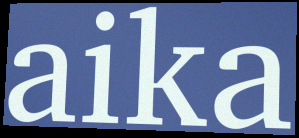
aika